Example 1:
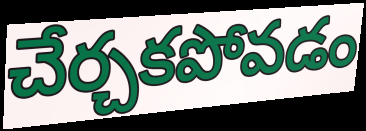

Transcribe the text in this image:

చేర్చకపోవడం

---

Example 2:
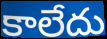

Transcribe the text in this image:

కాలేదు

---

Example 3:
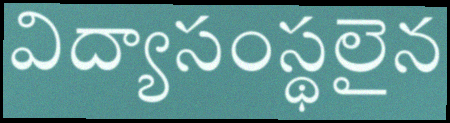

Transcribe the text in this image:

విద్యాసంస్థలైన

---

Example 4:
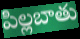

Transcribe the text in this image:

పిల్లబాతు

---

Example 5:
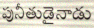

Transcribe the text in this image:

పునీతుడైనాడు